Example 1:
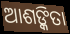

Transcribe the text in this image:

ଆଶଙ୍କିତା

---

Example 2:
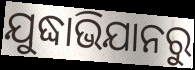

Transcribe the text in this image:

ଯୁଦ୍ଧାଭିଯାନରୁ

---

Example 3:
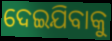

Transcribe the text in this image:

ଦେଇଯିବାକୁ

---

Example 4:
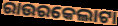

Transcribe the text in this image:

ରାଉରକେଲାଟା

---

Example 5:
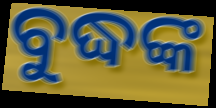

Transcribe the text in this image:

ବୁଦ୍ଧଙ୍କ